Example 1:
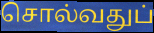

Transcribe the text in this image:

சொல்வதுப்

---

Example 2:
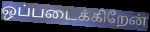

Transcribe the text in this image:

ஒப்படைக்கிறேன்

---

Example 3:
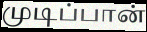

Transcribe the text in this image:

முடிப்பான்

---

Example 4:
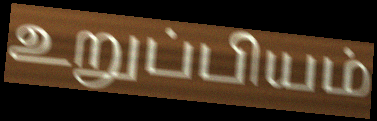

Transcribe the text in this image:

உறுப்பியம்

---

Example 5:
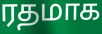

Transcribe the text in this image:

ரதமாக